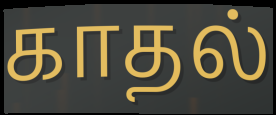
காதல்